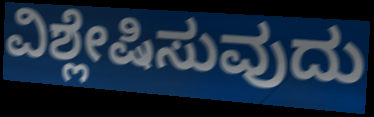
ವಿಶ್ಲೇಷಿಸುವುದು